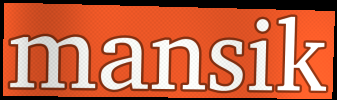
mansik